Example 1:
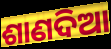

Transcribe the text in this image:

ଶାଣଦିଆ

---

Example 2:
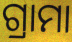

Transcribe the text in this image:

ଗ୍ରାମା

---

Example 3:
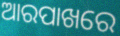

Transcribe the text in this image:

ଆରପାଖରେ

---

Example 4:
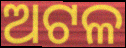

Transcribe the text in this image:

ଅଟଳ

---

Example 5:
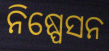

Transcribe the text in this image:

ନିଷ୍ପେସନ